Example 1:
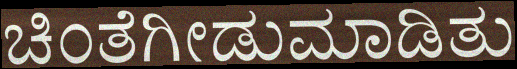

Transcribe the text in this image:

ಚಿಂತೆಗೀಡುಮಾಡಿತು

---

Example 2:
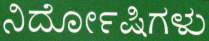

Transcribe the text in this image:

ನಿರ್ದೋಷಿಗಳು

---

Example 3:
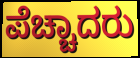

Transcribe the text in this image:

ಪೆಚ್ಚಾದರು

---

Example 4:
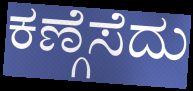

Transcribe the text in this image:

ಕಣ್ಗೆಸೆದು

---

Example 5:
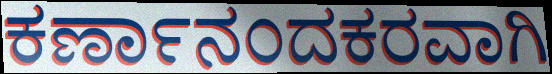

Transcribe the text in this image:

ಕರ್ಣಾನಂದಕರವಾಗಿ